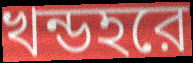
খন্ডহরে